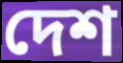
দেশ